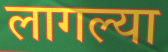
लागल्‍या